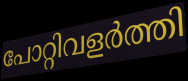
പോറ്റിവളർത്തി